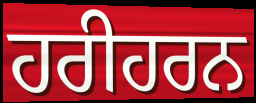
ਹਰੀਹਰਨ